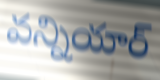
వన్నియార్